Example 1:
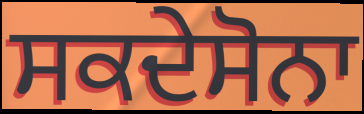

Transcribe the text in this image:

ਸਕਦੇਸੋਨਾ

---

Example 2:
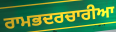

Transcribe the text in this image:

ਰਾਮਭਦਰਚਾਰੀਆ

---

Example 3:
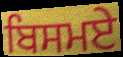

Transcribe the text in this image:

ਬਿਸਮਏ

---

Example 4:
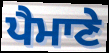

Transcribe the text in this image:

ਪੈਮਾਣੇ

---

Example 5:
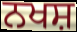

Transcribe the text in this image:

ਨਖਸ਼